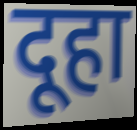
दूहा